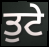
ਤੁਟੇ